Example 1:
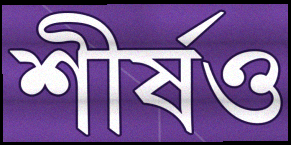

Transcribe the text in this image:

শীর্ষও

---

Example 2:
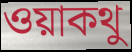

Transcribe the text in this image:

ওয়াকথু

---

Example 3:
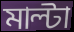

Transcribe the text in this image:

মাল্টা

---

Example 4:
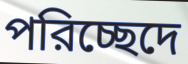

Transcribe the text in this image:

পরিচ্ছেদে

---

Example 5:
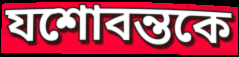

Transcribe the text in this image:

যশোবন্তকে